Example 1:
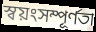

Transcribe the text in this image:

স্বয়ংসম্পূর্ণতা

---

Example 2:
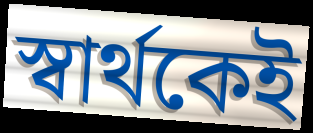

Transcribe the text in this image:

স্বার্থকেই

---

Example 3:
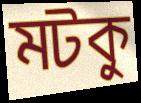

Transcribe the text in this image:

মটকু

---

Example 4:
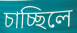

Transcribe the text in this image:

চাচ্ছিলে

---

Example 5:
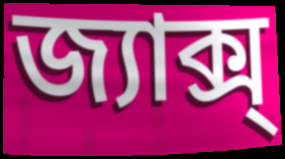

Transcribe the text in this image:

জ্যাক্স্